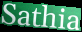
Sathia